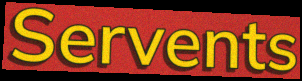
Servents